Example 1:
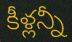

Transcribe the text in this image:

కీళ్లన్నీ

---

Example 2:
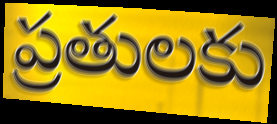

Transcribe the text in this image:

ప్రతులకు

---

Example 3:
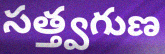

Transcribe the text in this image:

సత్త్వగుణ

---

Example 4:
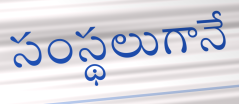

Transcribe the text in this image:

సంస్థలుగానే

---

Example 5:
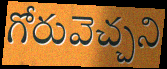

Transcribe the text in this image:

గోరువెచ్చని